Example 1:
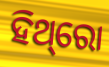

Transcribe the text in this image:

ହିଥ୍‌ରୋ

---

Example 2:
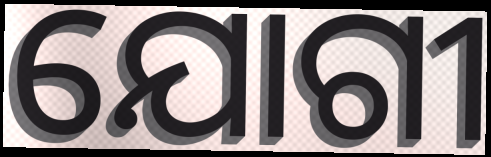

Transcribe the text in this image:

ଯୋଗୀ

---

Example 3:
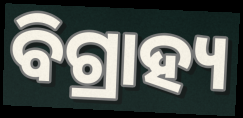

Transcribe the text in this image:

ବିଗ୍ରାହ୍ୟ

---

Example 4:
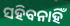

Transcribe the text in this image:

ସହିବନାହିଁ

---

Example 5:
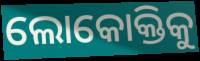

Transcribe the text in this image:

ଲୋକୋକ୍ତିକୁ